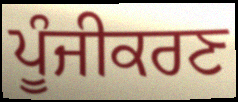
ਪੂੰਜੀਕਰਣ